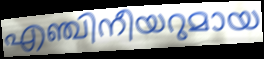
എഞ്ചിനീയറുമായ